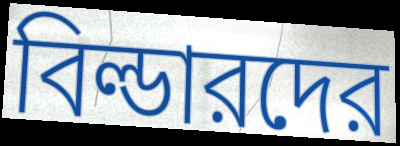
বিল্ডারদের